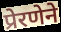
प्रेरणेने